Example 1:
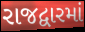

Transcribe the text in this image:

રાજદ્વારમાં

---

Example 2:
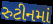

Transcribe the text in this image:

રુટીનમાં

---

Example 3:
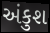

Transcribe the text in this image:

અંકુશ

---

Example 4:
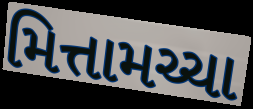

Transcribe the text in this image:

મિત્તામચ્ચા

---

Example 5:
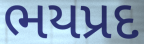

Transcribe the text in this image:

ભયપ્રદ